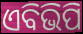
ଏବିଭିପି